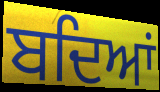
ਬਦਿਆਂ